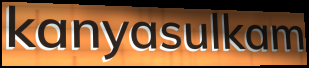
kanyasulkam